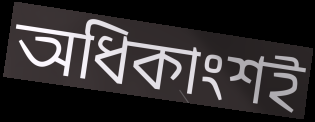
অধিকাংশই